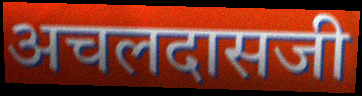
अचलदासजी